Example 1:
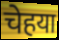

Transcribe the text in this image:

चेहया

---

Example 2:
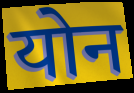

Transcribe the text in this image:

योन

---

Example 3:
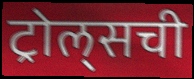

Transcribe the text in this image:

ट्रोल्सची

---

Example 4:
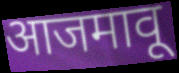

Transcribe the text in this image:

आजमावू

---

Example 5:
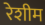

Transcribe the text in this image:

रेशीम